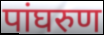
पांघरुण